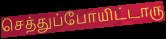
செத்துப்போயிட்டாரு